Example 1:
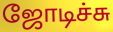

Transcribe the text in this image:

ஜோடிச்சு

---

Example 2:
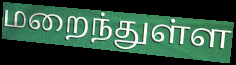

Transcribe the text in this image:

மறைந்துள்ள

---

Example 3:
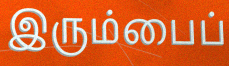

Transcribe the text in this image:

இரும்பைப்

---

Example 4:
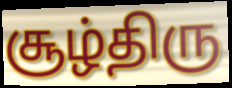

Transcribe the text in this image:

சூழ்திரு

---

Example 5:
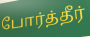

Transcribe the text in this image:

போர்த்தீர்